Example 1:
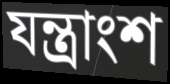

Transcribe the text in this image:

যন্ত্রাংশ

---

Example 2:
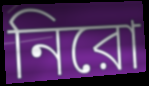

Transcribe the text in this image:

নিরো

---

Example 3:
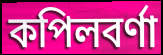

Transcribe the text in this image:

কপিলবর্ণা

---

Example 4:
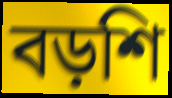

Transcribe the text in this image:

বড়শি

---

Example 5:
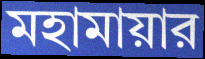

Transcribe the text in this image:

মহামায়ার